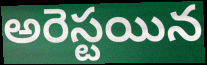
అరెస్టయిన